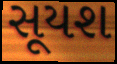
સૂયશ